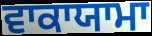
ਵਾਕਾਯਾਮਾ